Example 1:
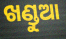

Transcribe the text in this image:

ଖଣ୍ଡୁଆ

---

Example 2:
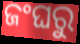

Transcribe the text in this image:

ଜଂଘରୁ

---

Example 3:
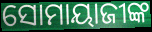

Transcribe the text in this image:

ସୋମାୟାଜୀଙ୍କ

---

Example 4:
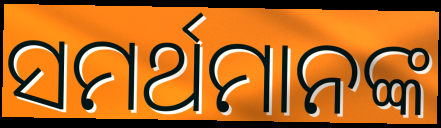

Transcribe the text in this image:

ସମର୍ଥମାନଙ୍କ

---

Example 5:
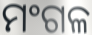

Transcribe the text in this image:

ମଂଗଳ